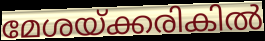
മേശയ്ക്കരികിൽ